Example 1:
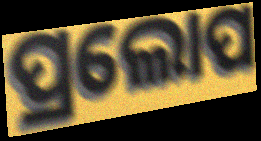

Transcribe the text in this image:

ପ୍ରଲୋପ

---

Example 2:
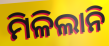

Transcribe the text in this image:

ମିଳିଲାନି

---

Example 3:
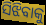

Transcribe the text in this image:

ସିଝିବାକୁ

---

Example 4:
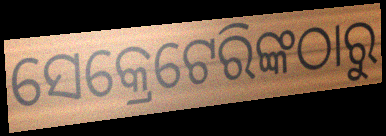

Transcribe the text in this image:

ସେକ୍ରେଟେରିଙ୍କଠାରୁ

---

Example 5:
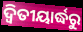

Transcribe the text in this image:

ଦ୍ଵିତୀୟାର୍ଦ୍ଧରୁ